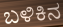
ಬಳಿಕಿನ